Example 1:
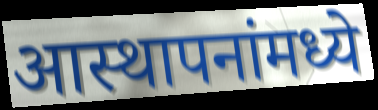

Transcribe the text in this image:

आस्थापनांमध्ये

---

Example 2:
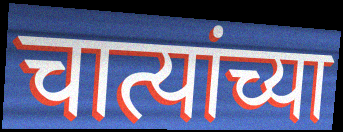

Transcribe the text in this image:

चात्यांच्या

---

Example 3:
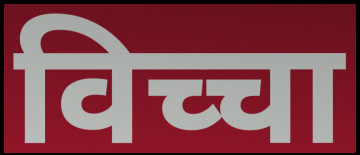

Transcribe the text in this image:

विच्चा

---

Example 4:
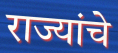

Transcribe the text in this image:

राज्यांचे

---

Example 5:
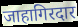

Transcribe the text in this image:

जाहागिरदार